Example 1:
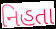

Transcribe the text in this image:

નિહતા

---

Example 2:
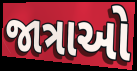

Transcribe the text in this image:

જાત્રાઓ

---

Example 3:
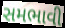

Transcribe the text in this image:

સમભાવી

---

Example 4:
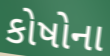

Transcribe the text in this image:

કોષોના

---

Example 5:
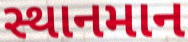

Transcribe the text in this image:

સ્થાનમાન